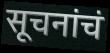
सूचनांचं